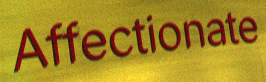
Affectionate